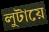
লুটায়ে